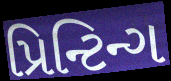
પ્રિન્ટિન્ગ